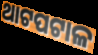
ଥାଟପଟାଳ